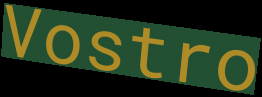
Vostro